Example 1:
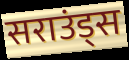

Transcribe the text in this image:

सराउंड्स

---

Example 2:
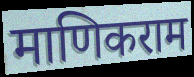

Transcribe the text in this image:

माणिकराम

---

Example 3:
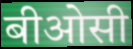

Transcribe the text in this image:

बीओसी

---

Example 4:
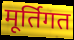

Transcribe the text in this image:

मूर्तिगत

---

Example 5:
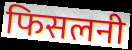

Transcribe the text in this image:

फिसलनी